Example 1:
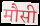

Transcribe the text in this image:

मौसी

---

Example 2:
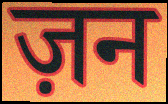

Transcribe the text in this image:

ज़न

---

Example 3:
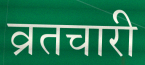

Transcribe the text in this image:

व्रतचारी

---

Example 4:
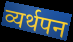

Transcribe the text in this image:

व्यर्थपन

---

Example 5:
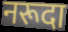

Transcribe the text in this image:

नरूदा